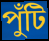
পুঁটি